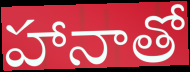
హానాతో